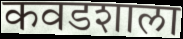
कवडशाला